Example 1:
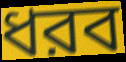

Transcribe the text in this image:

ধরব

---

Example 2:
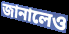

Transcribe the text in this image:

জানালেও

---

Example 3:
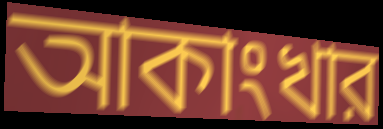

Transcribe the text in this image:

আকাংখার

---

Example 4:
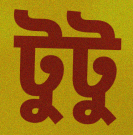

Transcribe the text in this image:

টুটু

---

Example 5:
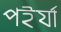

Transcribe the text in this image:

পইর্যা